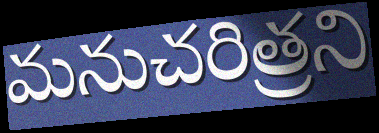
మనుచరిత్రని